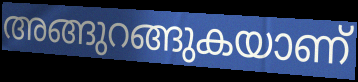
അങ്ങുറങ്ങുകയാണ്